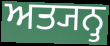
ਅਤ੍ਯਨ੍ਤ